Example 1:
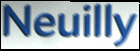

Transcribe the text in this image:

Neuilly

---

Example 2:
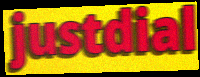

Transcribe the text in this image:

justdial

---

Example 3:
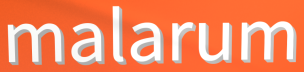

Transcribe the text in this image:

malarum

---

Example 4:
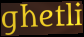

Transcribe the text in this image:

ghetli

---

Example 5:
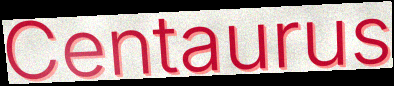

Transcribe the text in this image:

Centaurus